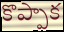
కొప్పాక